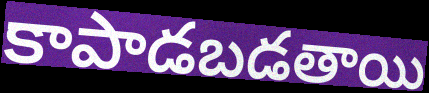
కాపాడబడతాయి